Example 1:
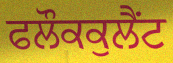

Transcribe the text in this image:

ਫਲੌਕਕੁਲੈਂਟ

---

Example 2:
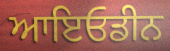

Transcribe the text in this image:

ਆਇਓਡੀਨ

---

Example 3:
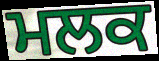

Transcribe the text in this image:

ਮਲਕ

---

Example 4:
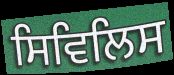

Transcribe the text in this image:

ਸਿਵਿਲਿਸ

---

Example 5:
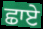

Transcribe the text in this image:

ਛਾਏ